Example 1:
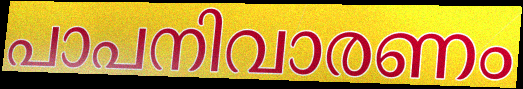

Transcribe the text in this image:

പാപനിവാരണം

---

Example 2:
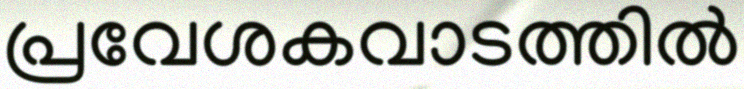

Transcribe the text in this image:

പ്രവേശകവാടത്തിൽ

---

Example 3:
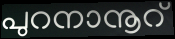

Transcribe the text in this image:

പുറനാനൂറ്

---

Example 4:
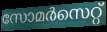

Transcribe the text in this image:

സോമർസെറ്റ്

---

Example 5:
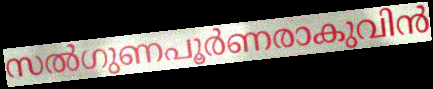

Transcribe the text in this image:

സൽഗുണപൂർണരാകുവിൻ